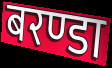
बरण्डा